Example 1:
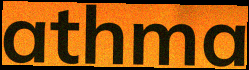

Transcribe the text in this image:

athma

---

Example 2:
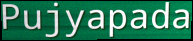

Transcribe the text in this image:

Pujyapada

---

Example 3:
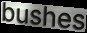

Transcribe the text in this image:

bushes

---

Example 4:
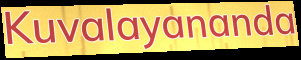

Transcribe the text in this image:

Kuvalayananda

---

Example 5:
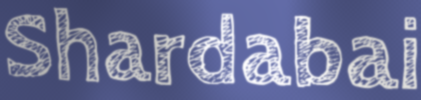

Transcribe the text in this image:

Shardabai